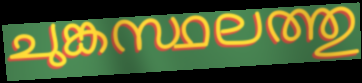
ചുങ്കസ്ഥലത്തു